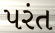
પરંત